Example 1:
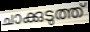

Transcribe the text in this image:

ചാക്കുടുത്ത്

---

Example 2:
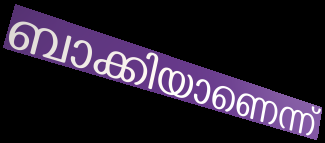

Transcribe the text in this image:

ബാക്കിയാണെന്ന്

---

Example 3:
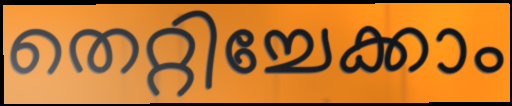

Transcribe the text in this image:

തെറ്റിച്ചേക്കാം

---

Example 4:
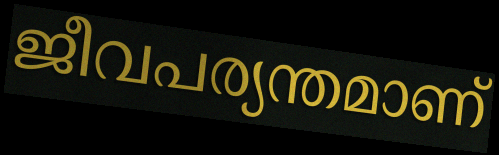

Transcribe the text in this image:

ജീവപര്യന്തമാണ്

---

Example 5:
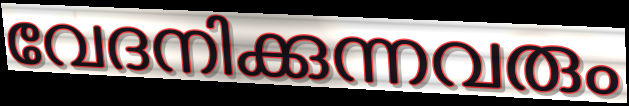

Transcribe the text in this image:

വേദനിക്കുന്നവരും